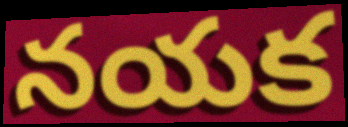
నయక